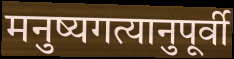
मनुष्यगत्यानुपूर्वी